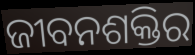
ଜୀବନଶକ୍ତିର